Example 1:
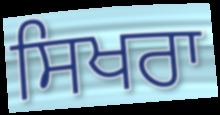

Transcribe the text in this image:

ਸਿਖਰਾ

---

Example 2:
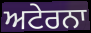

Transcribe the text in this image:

ਅਟੇਰਨਾ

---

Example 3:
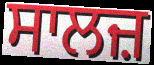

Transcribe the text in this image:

ਸਾਲਜ਼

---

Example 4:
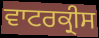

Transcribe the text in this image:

ਵਾਟਰਕ੍ਰੀਸ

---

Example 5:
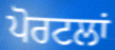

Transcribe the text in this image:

ਪੋਰਟਲਾਂ